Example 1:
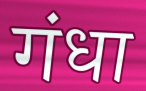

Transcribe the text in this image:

गंधा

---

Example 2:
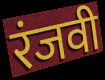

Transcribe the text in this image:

रंजवी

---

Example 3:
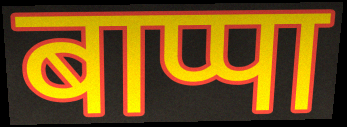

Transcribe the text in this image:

बाप्पा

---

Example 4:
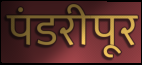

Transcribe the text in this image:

पंडरीपूर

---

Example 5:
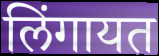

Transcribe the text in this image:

लिंगायत